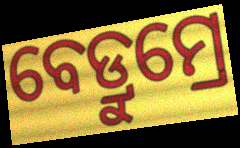
ବେଡ୍ରୁମ୍ରେ